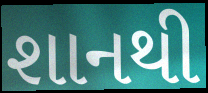
શાનથી